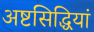
अष्टसिद्धियां